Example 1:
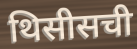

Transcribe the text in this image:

थिसीसची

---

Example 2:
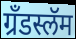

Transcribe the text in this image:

ग्रँडस्लॅम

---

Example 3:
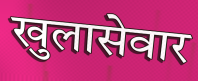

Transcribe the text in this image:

खुलासेवार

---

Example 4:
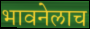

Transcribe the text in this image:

भावनेलाच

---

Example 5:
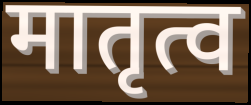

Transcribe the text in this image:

मातृत्व